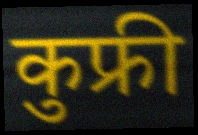
कुफ्री